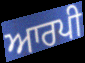
ਆਰਪੀ